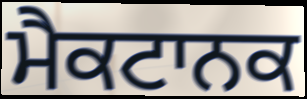
ਮੈਕਟਾਨਕ